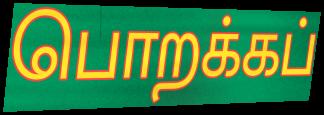
பொறக்கப்